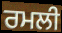
ਰਮਲੀ